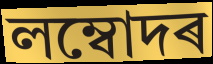
লম্বোদৰ